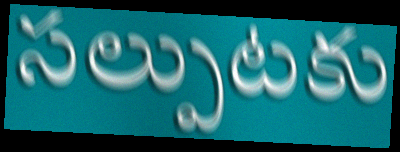
సల్పుటకు